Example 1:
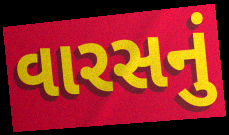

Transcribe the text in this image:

વારસનું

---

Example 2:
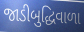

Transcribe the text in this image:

જાડીબુદ્ધિવાળા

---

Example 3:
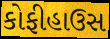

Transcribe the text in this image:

કોફીહાઉસ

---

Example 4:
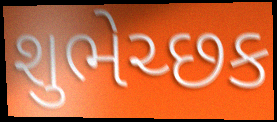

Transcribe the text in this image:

શુભેચ્છક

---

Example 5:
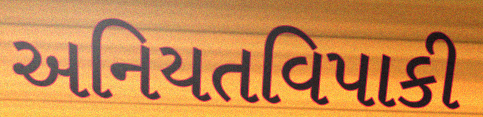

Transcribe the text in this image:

અનિયતવિપાકી